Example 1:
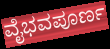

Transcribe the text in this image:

ವೈಭವಪೂರ್ಣ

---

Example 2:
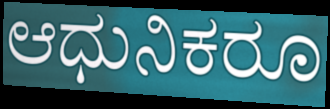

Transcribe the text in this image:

ಆಧುನಿಕರೂ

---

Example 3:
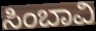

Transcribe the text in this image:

ಸಿಂಬಾವಿ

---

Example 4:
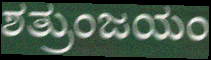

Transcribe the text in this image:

ಶತ್ರುಂಜಯಂ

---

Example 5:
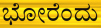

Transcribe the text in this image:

ಭೋರೆಂದು